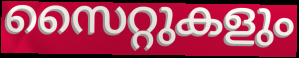
സൈറ്റുകളും